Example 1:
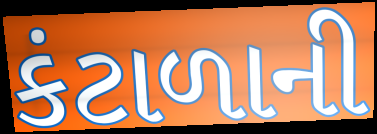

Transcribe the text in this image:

કંટાળાની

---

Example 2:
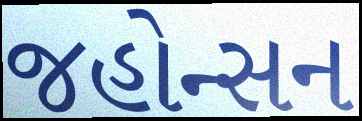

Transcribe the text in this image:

જહોન્સન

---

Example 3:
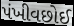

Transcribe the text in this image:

પંખીવછોઈ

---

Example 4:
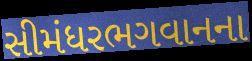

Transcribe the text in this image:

સીમંધરભગવાનના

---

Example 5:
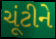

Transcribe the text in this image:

ચૂંટીને